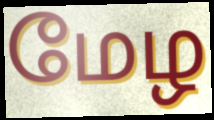
மேழ